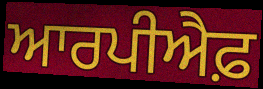
ਆਰਪੀਐਫ਼